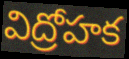
విద్రోహక